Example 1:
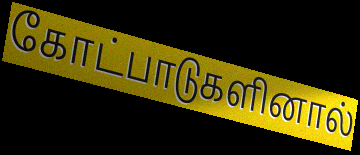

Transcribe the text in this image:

கோட்பாடுகளினால்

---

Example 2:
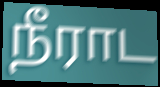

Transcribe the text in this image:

நீராட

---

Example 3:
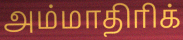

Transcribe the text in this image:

அம்மாதிரிக்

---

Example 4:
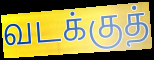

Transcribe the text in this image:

வடக்குத்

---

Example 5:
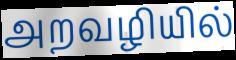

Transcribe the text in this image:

அறவழியில்